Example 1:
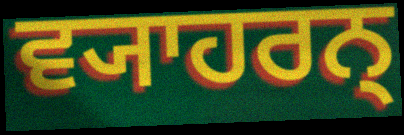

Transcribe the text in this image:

ਵ੍ਯਾਹਰਨ੍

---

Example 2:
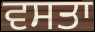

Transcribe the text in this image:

ਵਸਤਾ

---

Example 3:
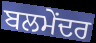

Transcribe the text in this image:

ਬਲਮੇਂਦਰ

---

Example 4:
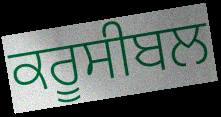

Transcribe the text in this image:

ਕਰੂਸੀਬਲ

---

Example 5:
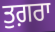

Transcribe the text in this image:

ਤੁਗ਼ਰਾ